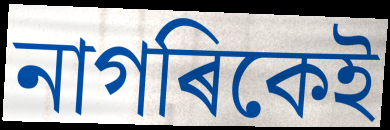
নাগৰিকেই